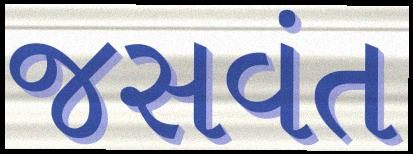
જસવંત